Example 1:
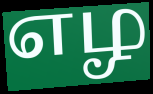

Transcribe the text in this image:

எழ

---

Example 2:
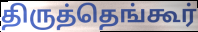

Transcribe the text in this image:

திருத்தெங்கூர்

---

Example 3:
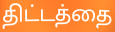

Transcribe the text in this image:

திட்டத்தை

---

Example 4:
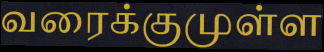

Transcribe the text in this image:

வரைக்குமுள்ள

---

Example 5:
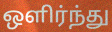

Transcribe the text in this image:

ஒளிர்ந்து